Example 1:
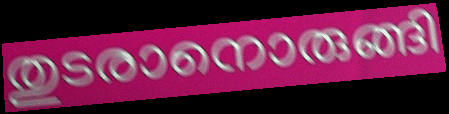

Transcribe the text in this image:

തുടരാനൊരുങ്ങി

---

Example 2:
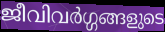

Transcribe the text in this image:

ജീവിവർഗ്ഗങ്ങളുടെ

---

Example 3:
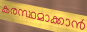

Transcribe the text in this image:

കരസ്ഥമാക്കാൻ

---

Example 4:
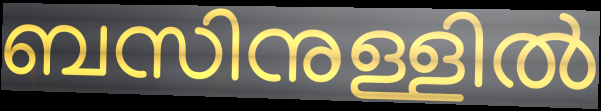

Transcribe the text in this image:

ബസിനുള്ളിൽ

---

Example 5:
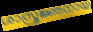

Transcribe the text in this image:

ശാസ്ത്രജ്ഞനായ